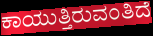
ಕಾಯುತ್ತಿರುವಂತಿದೆ